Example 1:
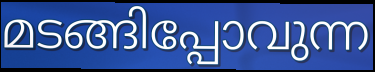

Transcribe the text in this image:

മടങ്ങിപ്പോവുന്ന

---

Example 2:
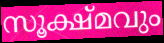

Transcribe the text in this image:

സൂക്ഷ്മവും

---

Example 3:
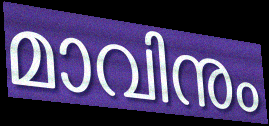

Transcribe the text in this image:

മാവിനും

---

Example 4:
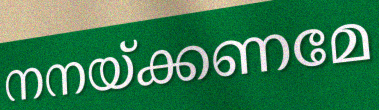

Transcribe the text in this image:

നനയ്ക്കണമേ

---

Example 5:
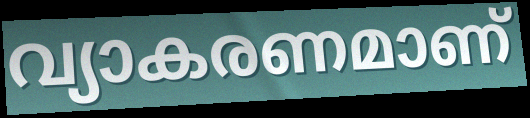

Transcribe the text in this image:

വ്യാകരണമാണ്